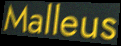
Malleus